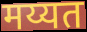
मय्यत